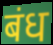
बंध